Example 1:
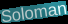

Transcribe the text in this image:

Soloman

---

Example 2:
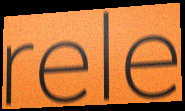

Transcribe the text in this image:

rele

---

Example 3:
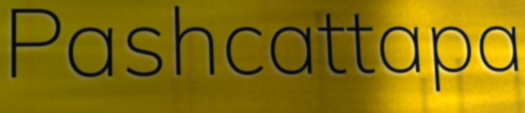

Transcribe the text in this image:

Pashcattapa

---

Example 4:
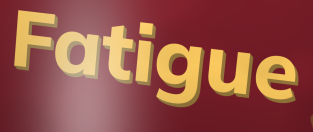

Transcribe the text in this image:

Fatigue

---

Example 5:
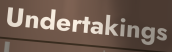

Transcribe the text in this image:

Undertakings